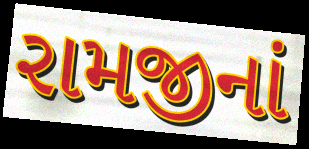
રામજીનાં